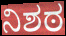
ನಿಶಠ